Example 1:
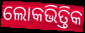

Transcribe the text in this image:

ଲୋକଭିତ୍ତିକ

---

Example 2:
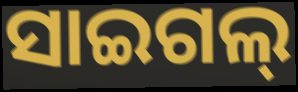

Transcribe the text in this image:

ସାଇଗଲ୍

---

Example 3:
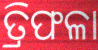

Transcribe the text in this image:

ତ୍ରିଫଳା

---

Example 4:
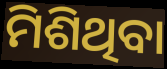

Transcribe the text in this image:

ମିଶିଥିବା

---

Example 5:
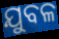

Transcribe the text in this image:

ଯୁବଳ